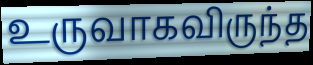
உருவாகவிருந்த